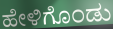
ಹೇಳಿಗೊಂಡು